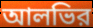
আলভির